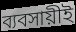
ব্যবসায়ীই